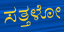
ಸತ್ತಳೋ